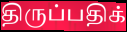
திருப்பதிக்